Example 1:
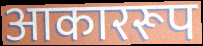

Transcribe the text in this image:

आकाररूप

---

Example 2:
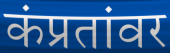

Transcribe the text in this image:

कंप्रतांवर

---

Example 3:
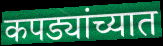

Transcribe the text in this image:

कपड्यांच्यात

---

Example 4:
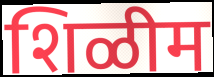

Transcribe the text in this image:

शिळीम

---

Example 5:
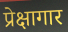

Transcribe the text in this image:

प्रेक्षागार